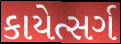
કાયેત્સર્ગ